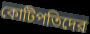
কোটিপতিদের